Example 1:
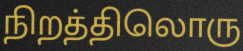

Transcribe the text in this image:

நிறத்திலொரு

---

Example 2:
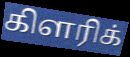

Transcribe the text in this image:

கிளரிக்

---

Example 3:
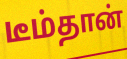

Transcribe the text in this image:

டீம்தான்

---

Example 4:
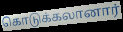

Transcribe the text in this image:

கொடுக்கலானார்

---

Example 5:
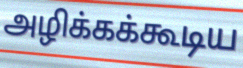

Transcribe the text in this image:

அழிக்கக்கூடிய